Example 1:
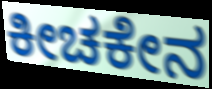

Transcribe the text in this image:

ಕೀಚಕೇನ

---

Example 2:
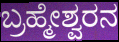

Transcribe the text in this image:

ಬ್ರಹ್ಮೇಶ್ವರನ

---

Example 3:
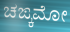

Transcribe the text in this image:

ಚಙ್ಕಮೋ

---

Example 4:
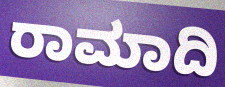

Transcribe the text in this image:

ರಾಮಾದಿ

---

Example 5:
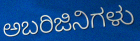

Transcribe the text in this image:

ಅಬರಿಜಿನಿಗಳು